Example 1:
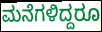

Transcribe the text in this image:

ಮನೆಗಳಿದ್ದರೂ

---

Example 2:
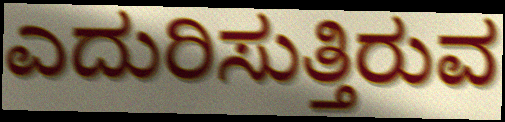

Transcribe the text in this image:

ಎದುರಿಸುತ್ತಿರುವ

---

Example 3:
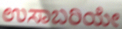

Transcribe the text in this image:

ಉಸಾಬರಿಯೇ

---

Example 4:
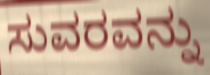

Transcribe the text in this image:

ಸುವರವನ್ನು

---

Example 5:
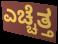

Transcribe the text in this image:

ಎಚ್ಚೆತ್ತ